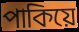
পাকিয়ে